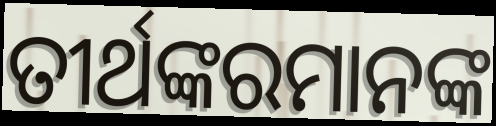
ତୀର୍ଥଙ୍କରମାନଙ୍କ